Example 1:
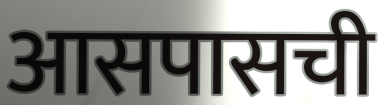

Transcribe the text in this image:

आसपासची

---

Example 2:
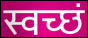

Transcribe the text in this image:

स्वच्छं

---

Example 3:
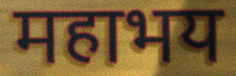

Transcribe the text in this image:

महाभय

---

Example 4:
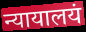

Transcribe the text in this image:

न्यायालयं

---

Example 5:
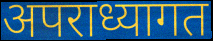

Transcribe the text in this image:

अपराध्यागत